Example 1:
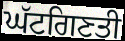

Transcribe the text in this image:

ਘੱਟਗਿਣਤੀ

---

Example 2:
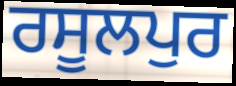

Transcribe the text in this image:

ਰਸੂਲਪੁਰ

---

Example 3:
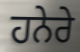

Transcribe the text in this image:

ਹਨੇਰੇ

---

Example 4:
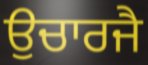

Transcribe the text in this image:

ਉਚਾਰਜੈ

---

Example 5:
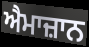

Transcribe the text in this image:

ਐਮਾਜ਼ਾਨ